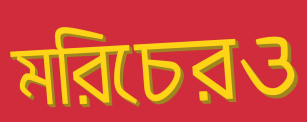
মরিচেরও